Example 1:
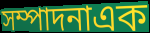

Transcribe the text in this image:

সম্পাদনাএক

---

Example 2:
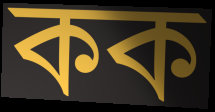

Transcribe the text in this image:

কক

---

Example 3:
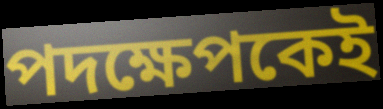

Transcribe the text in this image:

পদক্ষেপকেই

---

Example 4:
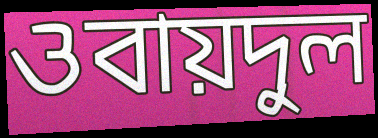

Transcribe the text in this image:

ওবায়দুল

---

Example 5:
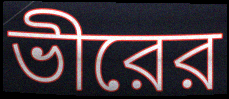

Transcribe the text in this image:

ভীরের